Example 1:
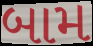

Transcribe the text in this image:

બામ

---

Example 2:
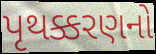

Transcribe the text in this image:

પૃથક્કરણનો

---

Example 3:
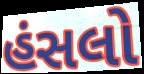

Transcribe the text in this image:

હંસલો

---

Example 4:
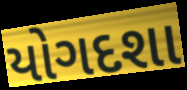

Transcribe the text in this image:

યોગદશા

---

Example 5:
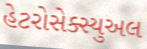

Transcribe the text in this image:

હેટરોસેક્સ્યુઅલ